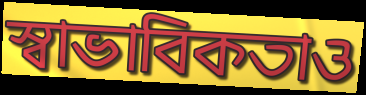
স্বাভাবিকতাও